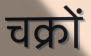
चक्रों